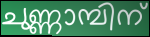
ചുണ്ണാമ്പിന്